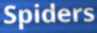
Spiders